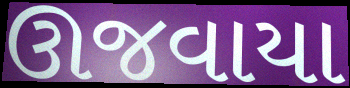
ઊજવાયા